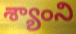
శ్యాంని